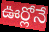
ఊర్లోనే